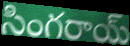
సింగరాయ్